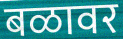
बळावर